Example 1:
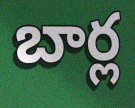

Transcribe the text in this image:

బార్ల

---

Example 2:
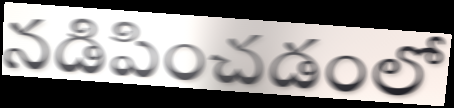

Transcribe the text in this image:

నడిపించడంలో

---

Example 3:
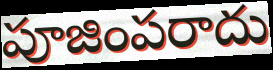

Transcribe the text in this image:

పూజింపరాదు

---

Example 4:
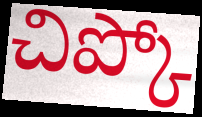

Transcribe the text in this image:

చిప్కో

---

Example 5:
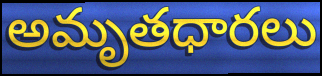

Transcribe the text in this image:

అమృతధారలు